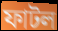
ফাটল